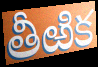
తీఱిక